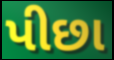
પીછા